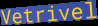
Vetrivel